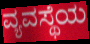
ವ್ಯವಸ್ಥೆಯ